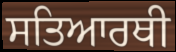
ਸਤਿਆਰਥੀ